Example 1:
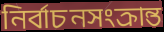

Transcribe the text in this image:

নির্বাচনসংক্রান্ত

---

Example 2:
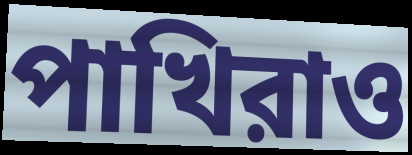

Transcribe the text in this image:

পাখিরাও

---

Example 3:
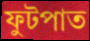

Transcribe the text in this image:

ফুটপাত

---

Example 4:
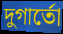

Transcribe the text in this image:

দুগার্তো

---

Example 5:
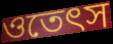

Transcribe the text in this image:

ওতেৎস